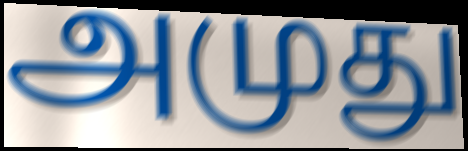
அமுது